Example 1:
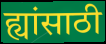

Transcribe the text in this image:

ह्यांसाठी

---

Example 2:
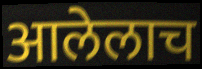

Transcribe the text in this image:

आलेलाच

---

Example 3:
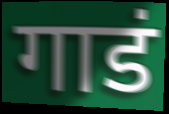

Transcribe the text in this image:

गाडं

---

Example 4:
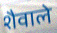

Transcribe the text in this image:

शैवाले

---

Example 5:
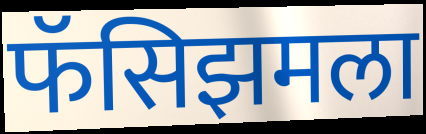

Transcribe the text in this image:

फॅसिझमला